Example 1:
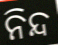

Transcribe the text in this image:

ନିନ୍ଦ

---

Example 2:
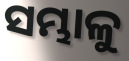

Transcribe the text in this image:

ସମ୍ଭାଳୁ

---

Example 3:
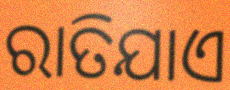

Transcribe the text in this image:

ରାତିଯାଏ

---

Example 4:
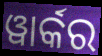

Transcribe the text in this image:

ୱାର୍କର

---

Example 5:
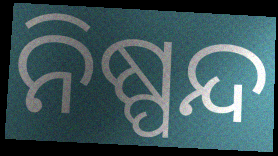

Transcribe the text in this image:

ନିଷ୍ପନ୍ଦ